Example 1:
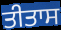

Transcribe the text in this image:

ਤੀਤਾਸ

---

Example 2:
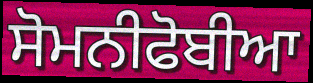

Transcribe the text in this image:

ਸੋਮਨੀਫੋਬੀਆ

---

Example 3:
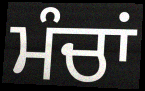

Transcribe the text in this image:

ਮੰਚਾਂ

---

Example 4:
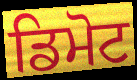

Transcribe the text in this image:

ਡਿਮੋਟ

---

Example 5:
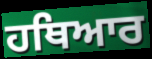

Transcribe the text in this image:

ਹਥਿਆਰ